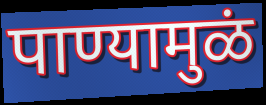
पाण्यामुळं